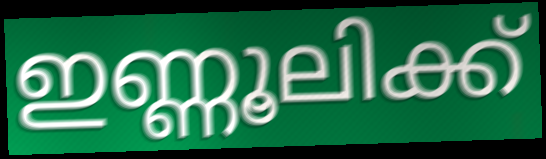
ഇണ്ണൂലിക്ക്